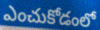
ఎంచుకోడంలో